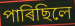
পাৰিছিলে